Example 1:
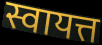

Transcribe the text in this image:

स्वायत्त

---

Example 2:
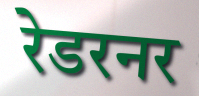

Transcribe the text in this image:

रेडरनर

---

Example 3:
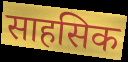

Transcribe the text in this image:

साहसिक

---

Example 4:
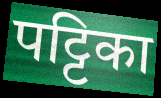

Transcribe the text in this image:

पट्टिका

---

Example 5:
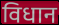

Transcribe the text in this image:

विधान